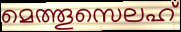
മെത്തൂസെലഹ്